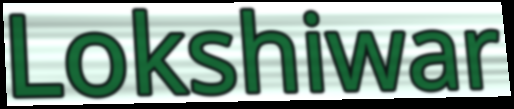
Lokshiwar